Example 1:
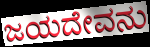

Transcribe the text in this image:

ಜಯದೇವನು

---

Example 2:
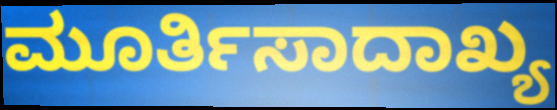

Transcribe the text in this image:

ಮೂರ್ತಿಸಾದಾಖ್ಯ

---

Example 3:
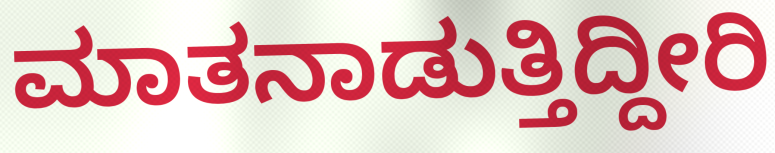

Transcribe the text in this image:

ಮಾತನಾಡುತ್ತಿದ್ದೀರಿ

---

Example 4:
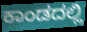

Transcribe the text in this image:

ಕಾಂಡದಲ್ಲಿ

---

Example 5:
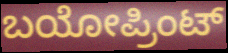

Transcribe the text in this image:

ಬಯೋಪ್ರಿಂಟ್